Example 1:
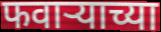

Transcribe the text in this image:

फवाऱ्याच्या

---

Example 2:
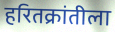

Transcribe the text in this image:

हरितक्रांतीला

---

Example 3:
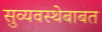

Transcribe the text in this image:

सुव्यवस्थेबाबत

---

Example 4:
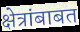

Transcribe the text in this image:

क्षेत्रांबाबत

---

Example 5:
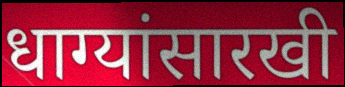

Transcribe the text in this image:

धाग्यांसारखी